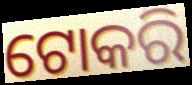
ଟୋକରି